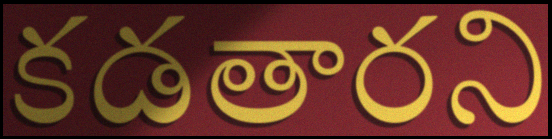
కడతారని